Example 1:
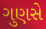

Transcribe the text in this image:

ગુણસે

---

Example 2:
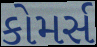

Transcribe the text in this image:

કોમર્સ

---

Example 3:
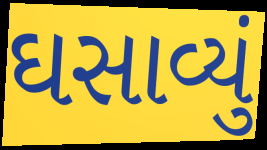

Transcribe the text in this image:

ઘસાવ્યું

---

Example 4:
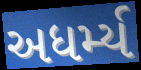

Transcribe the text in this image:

અધર્મ્ય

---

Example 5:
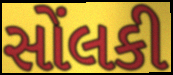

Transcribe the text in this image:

સોંલકી